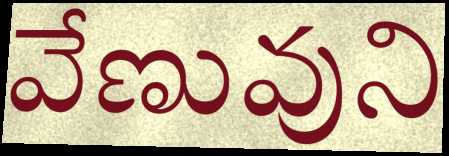
వేణువుని